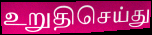
உறுதிசெய்து